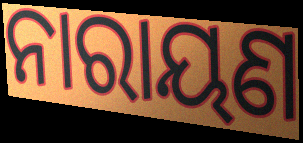
ନାରାୟଣ